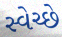
સ્વેચ્છે